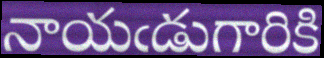
నాయఁడుగారికి